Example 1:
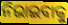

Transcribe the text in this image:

ନିଭାଇବାକୁ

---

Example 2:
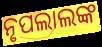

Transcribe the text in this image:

ନୃପଲାଲଙ୍କ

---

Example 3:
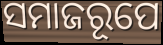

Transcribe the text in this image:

ସମାଜରୂପେ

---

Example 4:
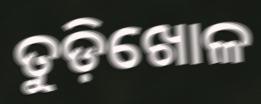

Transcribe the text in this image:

ତୁଡ଼ିଖୋଳ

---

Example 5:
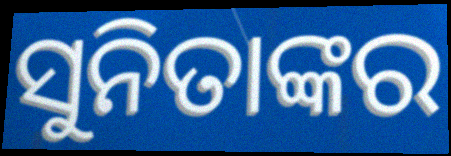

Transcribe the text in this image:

ସୁନିତାଙ୍କର